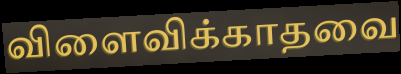
விளைவிக்காதவை